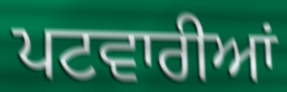
ਪਟਵਾਰੀਆਂ